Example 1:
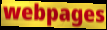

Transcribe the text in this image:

webpages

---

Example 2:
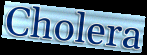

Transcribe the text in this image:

Cholera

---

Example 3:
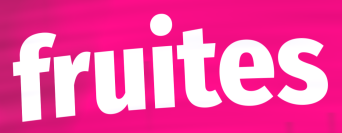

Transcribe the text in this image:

fruites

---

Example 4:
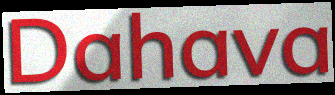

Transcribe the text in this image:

Dahava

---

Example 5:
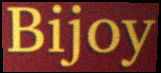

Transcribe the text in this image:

Bijoy